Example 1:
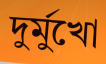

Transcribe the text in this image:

দুর্মুখো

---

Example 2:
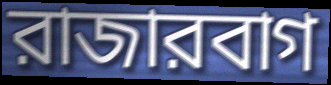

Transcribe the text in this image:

রাজারবাগ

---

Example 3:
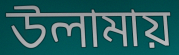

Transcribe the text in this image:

উলামায়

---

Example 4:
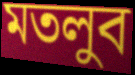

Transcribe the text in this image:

মতলুব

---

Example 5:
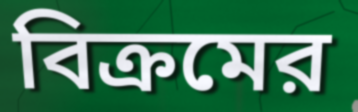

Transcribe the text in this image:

বিক্রমের